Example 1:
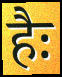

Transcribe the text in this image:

हैः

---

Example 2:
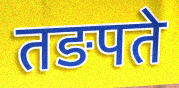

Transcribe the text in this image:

तङपते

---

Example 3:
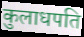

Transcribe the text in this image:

कुलाधपति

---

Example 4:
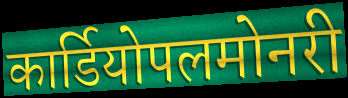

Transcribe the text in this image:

कार्डियोपलमोनरी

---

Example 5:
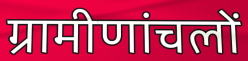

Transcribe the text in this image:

ग्रामीणांचलों